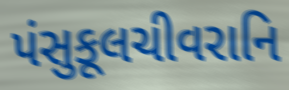
પંસુકૂલચીવરાનિ